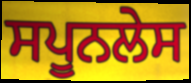
ਸਪੂਨਲੇਸ